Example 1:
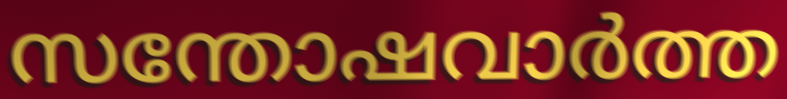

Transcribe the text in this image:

സന്തോഷവാർത്ത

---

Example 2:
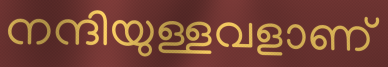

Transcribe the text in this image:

നന്ദിയുള്ളവളാണ്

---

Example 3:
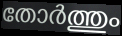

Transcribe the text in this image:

തോർത്തും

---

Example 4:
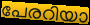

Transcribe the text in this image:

പേരറിയാ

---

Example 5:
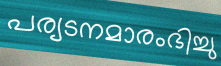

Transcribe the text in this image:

പര്യടനമാരംഭിച്ചു